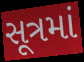
સૂત્રમાં